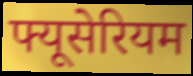
फ्यूसेरियम